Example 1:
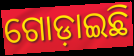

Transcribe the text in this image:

ଗୋଡ଼ାଇଛି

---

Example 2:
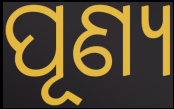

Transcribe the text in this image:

ପୂଣ୍ୟ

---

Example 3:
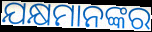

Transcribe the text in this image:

ଯକ୍ଷମାନଙ୍କର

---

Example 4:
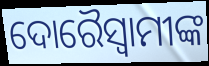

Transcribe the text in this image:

ଦୋରୈସ୍ବାମୀଙ୍କ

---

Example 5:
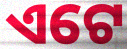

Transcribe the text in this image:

ଏଟେ